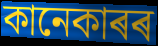
কানেকাৰৰ